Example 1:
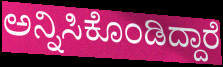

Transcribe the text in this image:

ಅನ್ನಿಸಿಕೊಂಡಿದ್ದಾರೆ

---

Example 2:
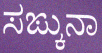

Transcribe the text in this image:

ಸಙ್ಕುನಾ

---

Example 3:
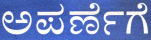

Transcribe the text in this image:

ಅಪರ್ಣೆಗೆ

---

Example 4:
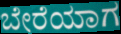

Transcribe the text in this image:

ಬೇರೆಯಾಗ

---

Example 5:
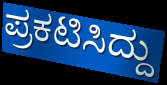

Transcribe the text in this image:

ಪ್ರಕಟಿಸಿದ್ದು